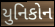
યુનિકોન